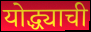
योद्ध्याची